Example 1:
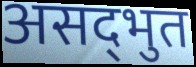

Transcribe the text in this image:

असद्भुत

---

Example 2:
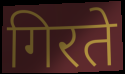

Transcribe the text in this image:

गिरते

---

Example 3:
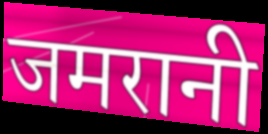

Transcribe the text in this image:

जमरानी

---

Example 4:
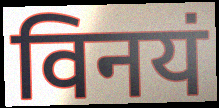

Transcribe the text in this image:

विनयं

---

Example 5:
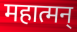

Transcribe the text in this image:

महात्मन्